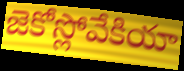
జెకోస్లోవేకియా